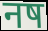
नष